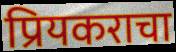
प्रियकराचा